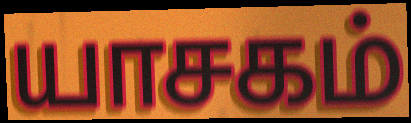
யாசகம்